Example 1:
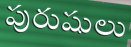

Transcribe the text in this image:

పురుషులు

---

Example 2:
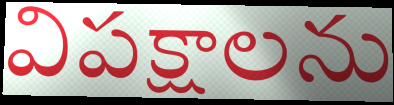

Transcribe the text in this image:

విపక్షాలను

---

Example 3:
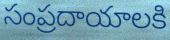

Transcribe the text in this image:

సంప్రదాయాలకి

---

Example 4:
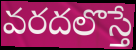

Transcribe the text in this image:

వరదలొస్తే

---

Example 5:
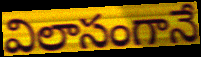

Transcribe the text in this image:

విలాసంగానే